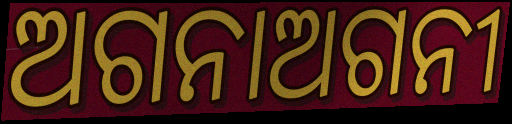
ଅଗନାଅଗନୀ